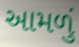
આમળું